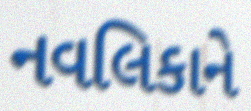
નવલિકાને